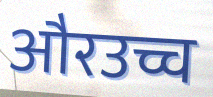
औरउच्च